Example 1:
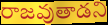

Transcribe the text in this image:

రాజవుతాడని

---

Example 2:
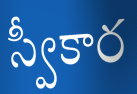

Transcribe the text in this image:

స్వీకార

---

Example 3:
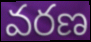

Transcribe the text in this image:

వరణ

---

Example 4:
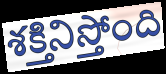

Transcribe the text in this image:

శక్తినిస్తోంది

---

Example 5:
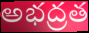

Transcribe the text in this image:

అభద్రత